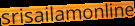
srisailamonline